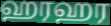
ஹரஹர